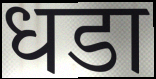
धडा